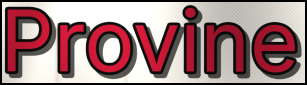
Provine